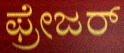
ಫ್ರೇಜರ್